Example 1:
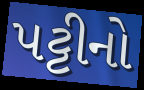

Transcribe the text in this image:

પટ્ટીનો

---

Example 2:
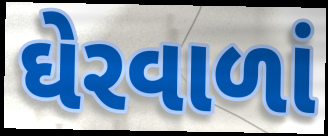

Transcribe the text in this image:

ઘેરવાળાં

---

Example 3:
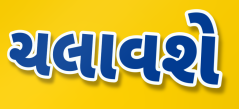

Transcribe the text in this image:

ચલાવશે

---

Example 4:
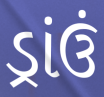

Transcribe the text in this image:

ડ્રાંઉં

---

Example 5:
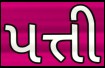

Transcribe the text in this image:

પત્તી